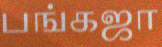
பங்கஜா